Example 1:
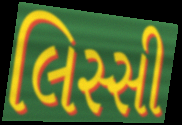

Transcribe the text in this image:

લિસ્સી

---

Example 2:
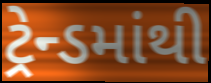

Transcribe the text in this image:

ટ્રેન્ડમાંથી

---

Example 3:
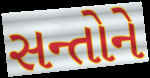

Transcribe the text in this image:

સન્તોને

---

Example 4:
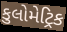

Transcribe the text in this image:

કુલોમેટ્રિક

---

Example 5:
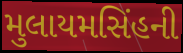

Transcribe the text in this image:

મુલાયમસિંહની